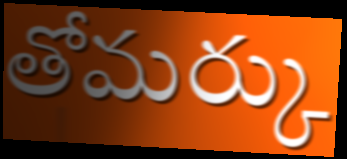
తోమర్కు